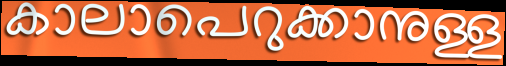
കാലാപെറുക്കാനുള്ള